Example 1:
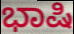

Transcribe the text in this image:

ಭಾಷಿ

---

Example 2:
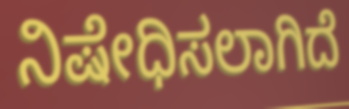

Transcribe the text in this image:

ನಿಷೇಧಿಸಲಾಗಿದೆ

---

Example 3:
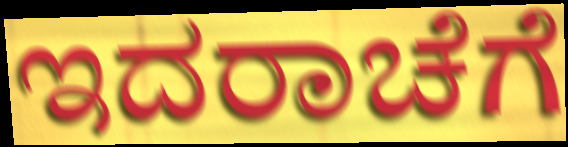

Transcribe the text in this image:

ಇದರಾಚೆಗೆ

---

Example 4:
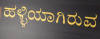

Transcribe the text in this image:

ಹಳ್ಳಿಯಾಗಿರುವ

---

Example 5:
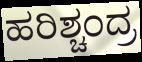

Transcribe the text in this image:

ಹರಿಶ್ಚಂದ್ರ